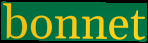
bonnet